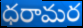
ధరామర